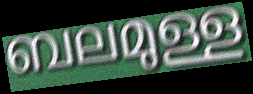
ബലമുള്ള